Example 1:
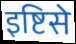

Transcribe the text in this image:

इष्टिसे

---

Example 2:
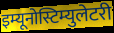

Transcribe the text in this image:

इम्यूनोस्टिम्युलेटरी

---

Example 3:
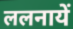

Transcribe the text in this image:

ललनायें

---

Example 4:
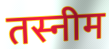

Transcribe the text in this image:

तस्नीम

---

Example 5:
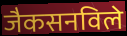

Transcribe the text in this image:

जैकसनविले